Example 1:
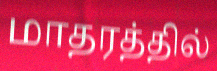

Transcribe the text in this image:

மாதரத்தில்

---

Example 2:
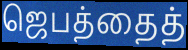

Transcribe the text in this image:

ஜெபத்தைத்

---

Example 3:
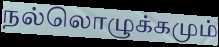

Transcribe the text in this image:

நல்லொழுக்கமும்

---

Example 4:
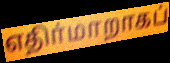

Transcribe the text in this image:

எதிர்மாறாகப்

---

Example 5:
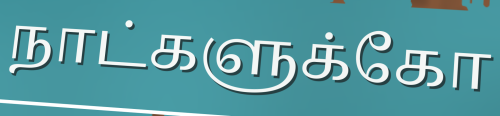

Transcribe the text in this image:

நாட்களுக்கோ